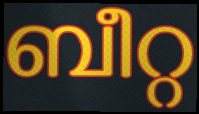
ബീറ്റ